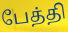
பேத்தி